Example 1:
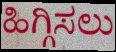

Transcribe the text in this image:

ಹಿಗ್ಗಿಸಲು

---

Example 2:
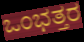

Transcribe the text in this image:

ಒಂಭತ್ತರ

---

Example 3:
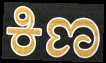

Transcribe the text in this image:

ಕಿಣ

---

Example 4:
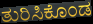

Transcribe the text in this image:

ತುರಿಸಿಕೊಂಡ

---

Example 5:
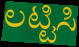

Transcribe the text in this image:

ಲಟ್ಟಿಸಿ